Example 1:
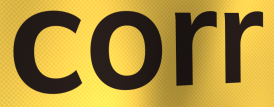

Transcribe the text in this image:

corr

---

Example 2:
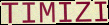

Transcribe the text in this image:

TIMIZI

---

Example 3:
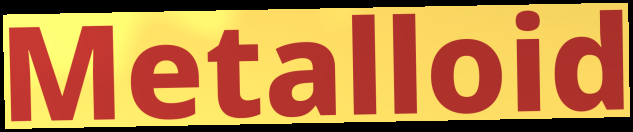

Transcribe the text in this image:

Metalloid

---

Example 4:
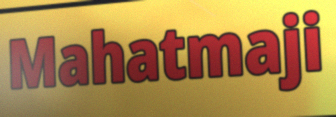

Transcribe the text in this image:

Mahatmaji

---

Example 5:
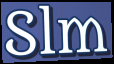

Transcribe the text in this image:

Slm